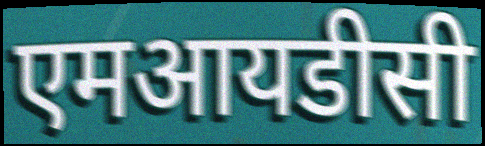
एमआयडीसी